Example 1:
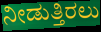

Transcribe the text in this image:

ನೀಡುತ್ತಿರಲು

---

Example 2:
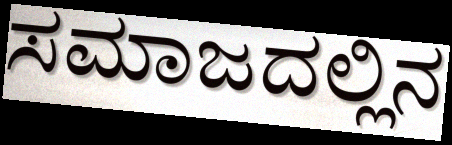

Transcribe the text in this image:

ಸಮಾಜದಲ್ಲಿನ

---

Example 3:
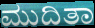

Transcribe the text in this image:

ಮುದಿತಾ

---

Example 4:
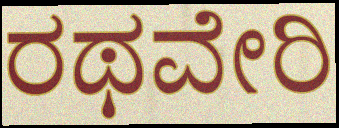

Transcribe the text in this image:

ರಥವೇರಿ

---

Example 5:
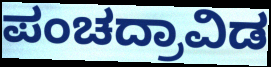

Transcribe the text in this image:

ಪಂಚದ್ರಾವಿಡ